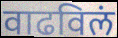
वाढविलं